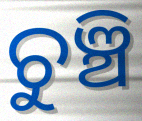
ଚୁଞ୍ଚି